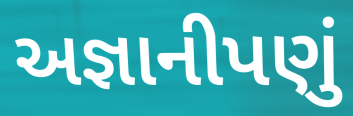
અજ્ઞાનીપણું